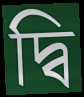
দ্বি